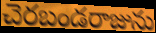
చెరబండరాజును